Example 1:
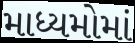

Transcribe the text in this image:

માધ્યમોમાં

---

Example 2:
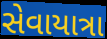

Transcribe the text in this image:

સેવાયાત્રા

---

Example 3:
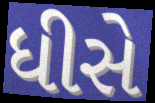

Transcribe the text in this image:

ધીસે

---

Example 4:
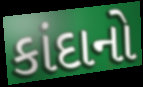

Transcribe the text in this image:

કાંદાનો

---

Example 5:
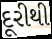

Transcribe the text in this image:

દૂરીથી